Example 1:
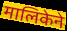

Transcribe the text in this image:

मालिकेने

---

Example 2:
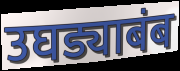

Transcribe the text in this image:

उघड्याबंब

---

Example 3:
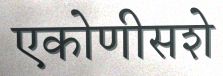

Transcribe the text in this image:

एकोणीसशे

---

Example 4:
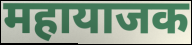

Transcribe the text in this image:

महायाजक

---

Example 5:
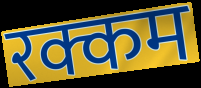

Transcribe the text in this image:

रक्कम